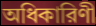
অধিকারিণী